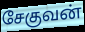
சேகுவன்